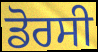
ਡੋਰਸੀ